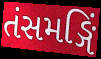
તંસમઙ્ગિં